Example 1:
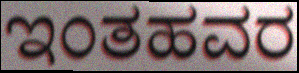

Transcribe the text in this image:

ಇಂತಹವರ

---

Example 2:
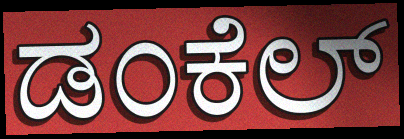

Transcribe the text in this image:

ಡಂಕೆಲ್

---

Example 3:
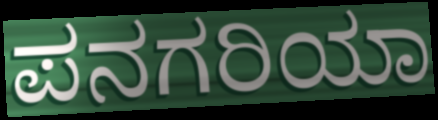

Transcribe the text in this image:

ಪನಗರಿಯಾ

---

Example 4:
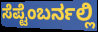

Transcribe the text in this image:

ಸೆಪ್ಟೆಂಬರ್ನಲ್ಲಿ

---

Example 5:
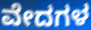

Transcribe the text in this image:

ವೇದಗಳ